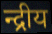
न्द्रीय